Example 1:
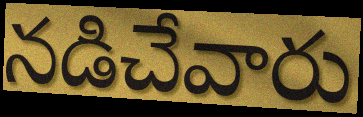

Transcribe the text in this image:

నడిచేవారు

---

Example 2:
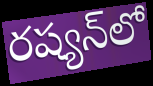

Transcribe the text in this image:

రష్యన్‌లో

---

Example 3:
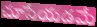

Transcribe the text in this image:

చూసేయడమే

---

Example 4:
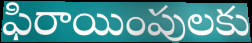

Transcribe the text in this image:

ఫిరాయింపులకు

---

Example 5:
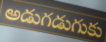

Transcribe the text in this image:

అడుగడుగుకు